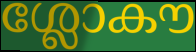
ശ്ലോകൗ